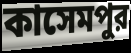
কাসেমপুর